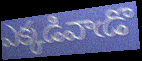
ఎక్కడివాఁడొ